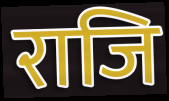
राजि